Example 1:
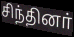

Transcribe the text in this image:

சிந்தினர்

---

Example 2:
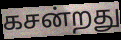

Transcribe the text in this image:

கசன்றது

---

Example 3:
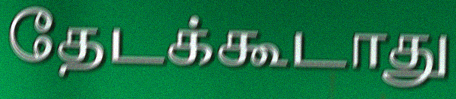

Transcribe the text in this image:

தேடக்கூடாது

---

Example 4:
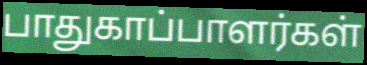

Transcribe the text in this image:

பாதுகாப்பாளர்கள்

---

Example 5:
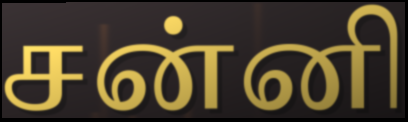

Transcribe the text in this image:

சன்னி